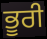
ਭੂਰੀ